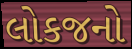
લોકજનો